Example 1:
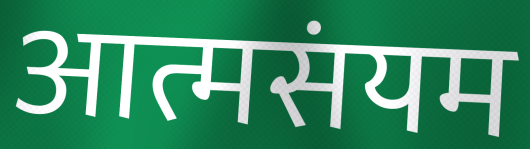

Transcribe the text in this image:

आत्मसंयम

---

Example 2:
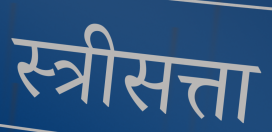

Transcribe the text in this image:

स्त्रीसत्ता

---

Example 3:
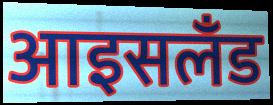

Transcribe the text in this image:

आइसलँड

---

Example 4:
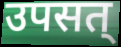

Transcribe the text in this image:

उपसत्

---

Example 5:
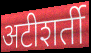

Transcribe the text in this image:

अटीशर्ती